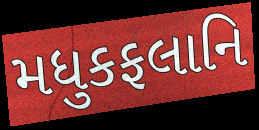
મધુકફલાનિ